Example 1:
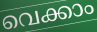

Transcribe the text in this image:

വെക്കാം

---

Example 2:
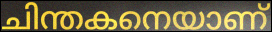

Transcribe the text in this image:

ചിന്തകനെയാണ്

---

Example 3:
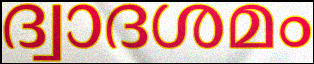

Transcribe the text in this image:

ദ്വാദശമം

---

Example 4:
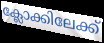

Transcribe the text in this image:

ക്ലോക്കിലേക്ക്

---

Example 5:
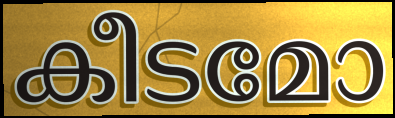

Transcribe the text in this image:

കീടമോ